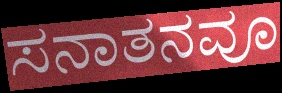
ಸನಾತನವೂ